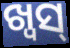
ଖ୍ୱସ୍